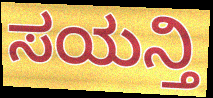
ಸಯನ್ತಿ